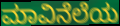
ಮಾವಿನೆಲೆಯ